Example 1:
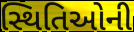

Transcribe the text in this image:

સ્થિતિઓની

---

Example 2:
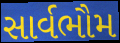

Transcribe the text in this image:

સાર્વભૌમ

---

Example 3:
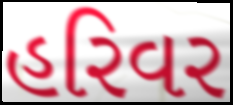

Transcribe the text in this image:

હરિવર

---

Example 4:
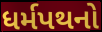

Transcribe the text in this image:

ધર્મપથનો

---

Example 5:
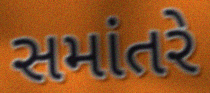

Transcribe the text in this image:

સમાંતરે